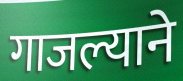
गाजल्याने